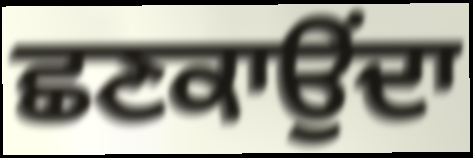
ਛਣਕਾਉਂਦਾ